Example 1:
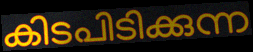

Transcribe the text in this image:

കിടപിടിക്കുന്ന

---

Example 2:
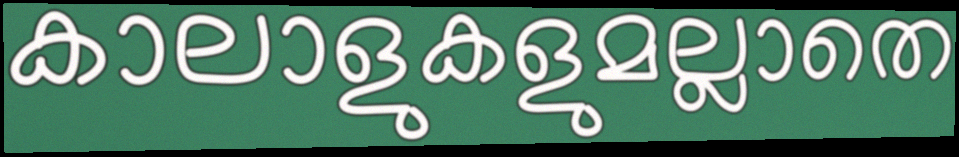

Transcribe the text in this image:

കാലാളുകളുമല്ലാതെ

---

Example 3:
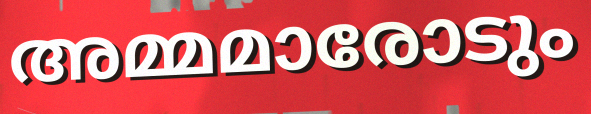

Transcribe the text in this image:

അമ്മമാരോടും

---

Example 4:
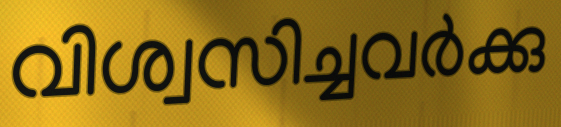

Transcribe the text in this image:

വിശ്വസിച്ചവർക്കു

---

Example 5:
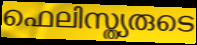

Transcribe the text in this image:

ഫെലിസ്ത്യരുടെ